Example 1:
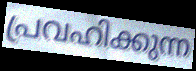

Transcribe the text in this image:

പ്രവഹിക്കുന്ന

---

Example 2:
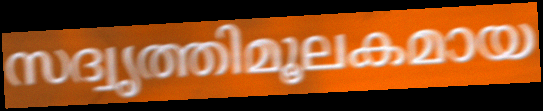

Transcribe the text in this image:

സദ്വൃത്തിമൂലകമായ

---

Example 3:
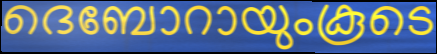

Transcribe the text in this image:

ദെബോറായുംകൂടെ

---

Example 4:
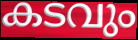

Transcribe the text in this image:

കടവും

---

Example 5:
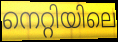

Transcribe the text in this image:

നെറ്റിയിലെ